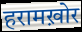
हरामख़ोर